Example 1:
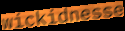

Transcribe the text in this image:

wickidnesse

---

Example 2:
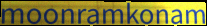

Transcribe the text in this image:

moonramkonam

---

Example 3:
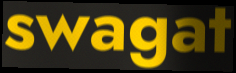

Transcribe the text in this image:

swagat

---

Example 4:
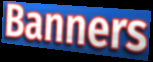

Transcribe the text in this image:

Banners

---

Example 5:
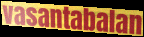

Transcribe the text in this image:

vasantabalan